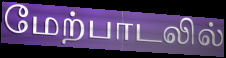
மேற்பாடலில்